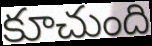
కూచుంది